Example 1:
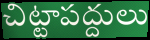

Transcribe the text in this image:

చిట్టాపద్దులు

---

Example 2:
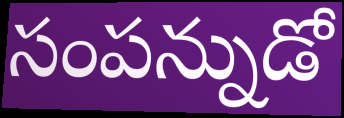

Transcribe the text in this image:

సంపన్నుడో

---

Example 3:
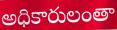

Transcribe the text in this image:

అధికారులంతా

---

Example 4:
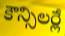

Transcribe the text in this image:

కౌన్సిలర్లే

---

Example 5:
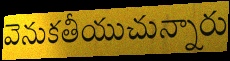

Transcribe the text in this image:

వెనుకతీయుచున్నారు